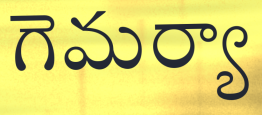
గెమర్యా